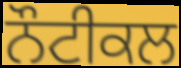
ਨੌਟੀਕਲ